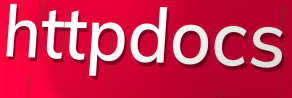
httpdocs